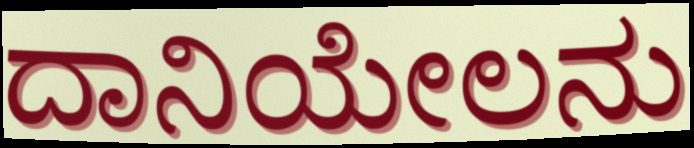
ದಾನಿಯೇಲನು